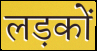
लड़कों